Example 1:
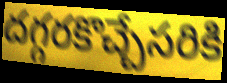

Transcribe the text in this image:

దగ్గరకొచ్చేసరికి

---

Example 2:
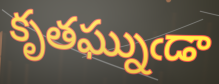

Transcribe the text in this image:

కృతఘ్నుఁడా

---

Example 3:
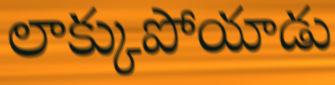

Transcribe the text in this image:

లాక్కుపోయాడు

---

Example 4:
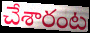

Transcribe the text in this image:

చేశారంట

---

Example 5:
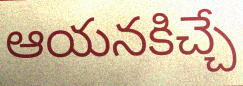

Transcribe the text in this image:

ఆయనకిచ్చే